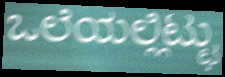
ಒಲೆಯಲ್ಲಿಟ್ಟು